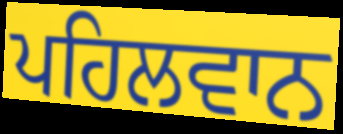
ਪਹਿਲਵਾਨ